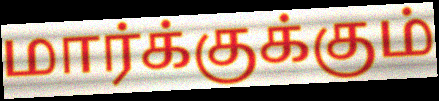
மார்க்குக்கும்